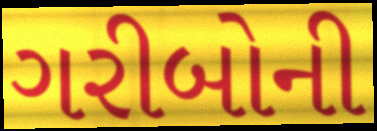
ગરીબોની